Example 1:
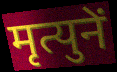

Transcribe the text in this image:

मृत्युनें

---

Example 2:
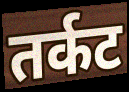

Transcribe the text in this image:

तर्कट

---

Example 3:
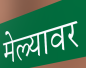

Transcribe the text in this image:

मेल्यावर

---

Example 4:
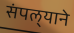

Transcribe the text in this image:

संपल्याने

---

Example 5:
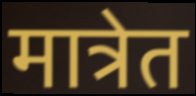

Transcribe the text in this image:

मात्रेत